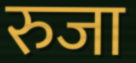
रुजा